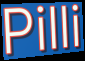
Pilli